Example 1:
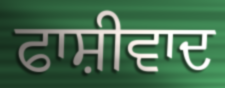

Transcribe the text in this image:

ਫਾਸ਼ੀਵਾਦ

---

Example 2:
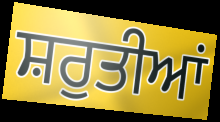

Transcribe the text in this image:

ਸ਼ਰੁਤੀਆਂ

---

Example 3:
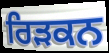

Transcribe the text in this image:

ਰਿੜਕਨ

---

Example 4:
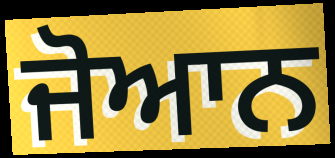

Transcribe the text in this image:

ਜੋਆਨ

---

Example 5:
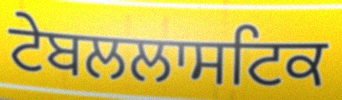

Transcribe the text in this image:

ਟੇਬਲਲਾਸਟਿਕ